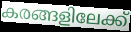
കരങ്ങളിലേക്ക്